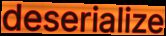
deserialize